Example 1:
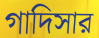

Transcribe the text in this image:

গাদিসার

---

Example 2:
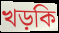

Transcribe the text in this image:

খড়কি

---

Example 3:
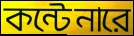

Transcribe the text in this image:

কন্টেনারে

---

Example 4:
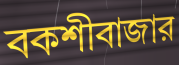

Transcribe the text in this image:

বকশীবাজার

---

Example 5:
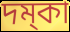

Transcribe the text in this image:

দম্‌কা